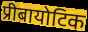
प्रीबायोटिक